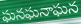
ఘనఘనాఘన